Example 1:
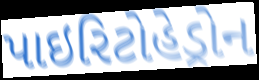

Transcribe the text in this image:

પાઇરિટોહેડ્રોન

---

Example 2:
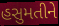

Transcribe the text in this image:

હસુમતીને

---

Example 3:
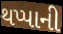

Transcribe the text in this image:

થપ્પાની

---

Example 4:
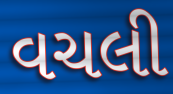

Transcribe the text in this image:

વચલી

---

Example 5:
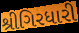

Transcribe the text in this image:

શ્રીગિરધારી